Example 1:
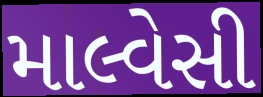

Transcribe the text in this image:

માલ્વેસી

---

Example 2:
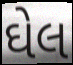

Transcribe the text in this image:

ઘેલ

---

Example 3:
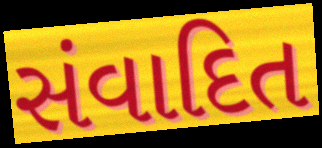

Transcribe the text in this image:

સંવાદિત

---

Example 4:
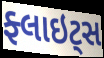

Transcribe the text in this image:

ફ્લાઇટ્સ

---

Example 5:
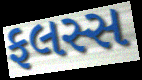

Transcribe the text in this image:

ફલસ્સ